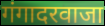
गंगादरवाजा